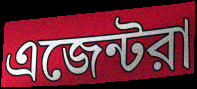
এজেন্টরা